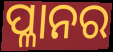
ପ୍ଳାନର